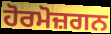
ਹੋਰਮੋਜ਼ਗਨ